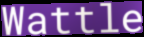
Wattle